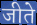
जीते